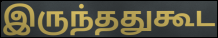
இருந்ததுகூட